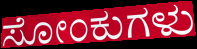
ಸೋಂಕುಗಳು